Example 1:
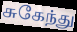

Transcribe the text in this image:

சுகேந்து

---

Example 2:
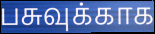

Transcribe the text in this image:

பசுவுக்காக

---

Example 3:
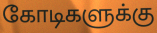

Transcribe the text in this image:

கோடிகளுக்கு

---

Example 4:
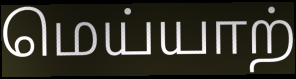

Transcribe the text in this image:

மெய்யாற்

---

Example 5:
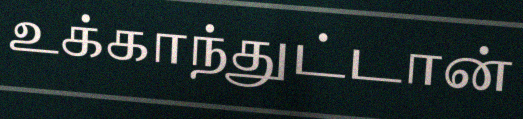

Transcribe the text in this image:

உக்காந்துட்டான்